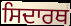
ਸਿਦਾਰਥ